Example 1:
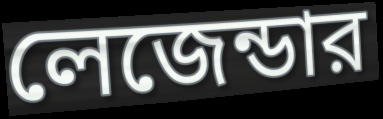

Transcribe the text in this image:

লেজেন্ডার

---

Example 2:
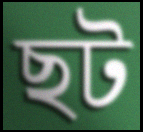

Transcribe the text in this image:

ছট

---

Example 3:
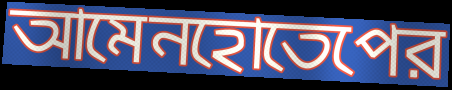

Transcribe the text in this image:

আমেনহোতেপের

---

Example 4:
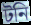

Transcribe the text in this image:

টনি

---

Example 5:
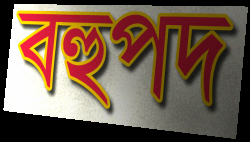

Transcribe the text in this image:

বহুপদ